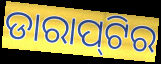
ଡାରାପ୍‌ଟିର